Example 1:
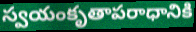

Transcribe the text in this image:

స్వయంకృతాపరాధానికి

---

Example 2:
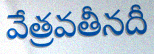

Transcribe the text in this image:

వేత్రవతీనదీ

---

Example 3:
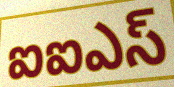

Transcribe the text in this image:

ఐఐఎస్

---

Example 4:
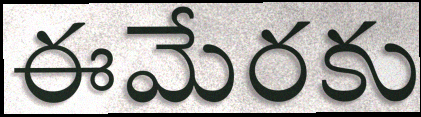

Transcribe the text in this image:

ఈమేరకు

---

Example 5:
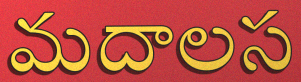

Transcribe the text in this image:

మదాలస